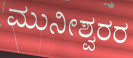
ಮುನೀಶ್ವರರ